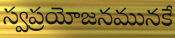
స్వప్రయోజనమునకే